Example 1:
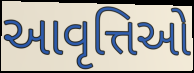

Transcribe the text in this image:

આવૃત્તિઓ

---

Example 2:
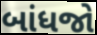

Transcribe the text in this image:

બાંધજો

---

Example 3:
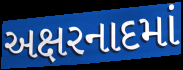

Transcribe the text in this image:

અક્ષરનાદમાં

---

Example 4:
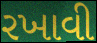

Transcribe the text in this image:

રખાવી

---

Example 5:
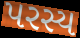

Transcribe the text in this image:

પરસ્ય